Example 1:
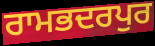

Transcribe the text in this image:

ਰਾਮਭਦਰਪੁਰ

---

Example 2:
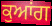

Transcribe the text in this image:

ਕੁਆਂਗ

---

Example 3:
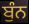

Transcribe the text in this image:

ਬੁੰਨ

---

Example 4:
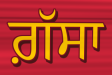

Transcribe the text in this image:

ਗ਼ੱਸਾ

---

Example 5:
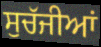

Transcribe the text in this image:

ਸੁਚੱਜੀਆਂ